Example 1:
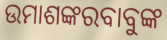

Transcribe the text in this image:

ଉମାଶଙ୍କରବାବୁଙ୍କ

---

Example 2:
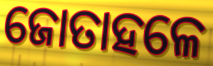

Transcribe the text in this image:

ଜୋତାହଳେ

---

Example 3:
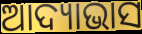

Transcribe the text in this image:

ଆଦ୍ୟାଭାସ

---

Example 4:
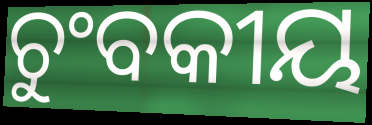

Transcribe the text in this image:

ଚୁଂବକୀୟ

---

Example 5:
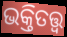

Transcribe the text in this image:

ଭକ୍ତିତତ୍ତ୍ୱ